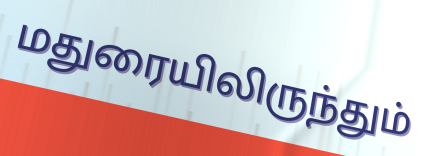
மதுரையிலிருந்தும்